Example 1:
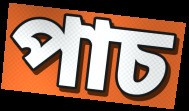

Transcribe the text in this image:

পাচ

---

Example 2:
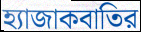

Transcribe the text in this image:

হ্যাজাকবাতির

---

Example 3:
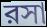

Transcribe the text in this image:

রসা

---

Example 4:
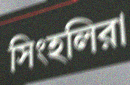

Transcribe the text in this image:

সিংহলিরা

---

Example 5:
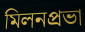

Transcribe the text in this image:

মিলনপ্রভা